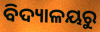
ବିଦ୍ୟାଳୟରୁ